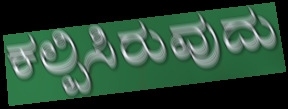
ಕಲ್ಪಿಸಿರುವುದು